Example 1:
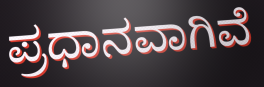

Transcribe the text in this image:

ಪ್ರಧಾನವಾಗಿವೆ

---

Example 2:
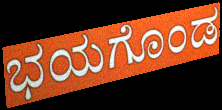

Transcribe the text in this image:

ಭಯಗೊಂಡ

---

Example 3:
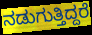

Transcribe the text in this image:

ನಡುಗುತ್ತಿದ್ದರೆ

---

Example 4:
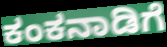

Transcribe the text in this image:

ಕಂಕನಾಡಿಗೆ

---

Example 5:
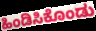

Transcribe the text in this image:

ಹಿಂಡಿಸಿಕೊಂಡು